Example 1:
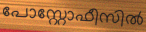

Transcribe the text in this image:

പോസ്റ്റോഫീസിൽ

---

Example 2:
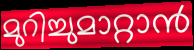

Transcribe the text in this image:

മുറിച്ചുമാറ്റാൻ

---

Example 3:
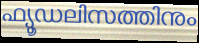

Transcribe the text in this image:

ഫ്യൂഡലിസത്തിനും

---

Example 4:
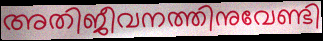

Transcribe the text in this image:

അതിജീവനത്തിനുവേണ്ടി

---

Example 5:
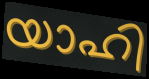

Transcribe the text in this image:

യാഹി